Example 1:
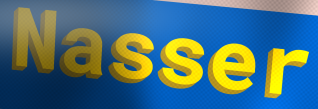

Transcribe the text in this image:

Nasser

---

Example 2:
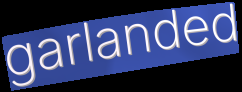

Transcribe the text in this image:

garlanded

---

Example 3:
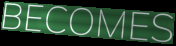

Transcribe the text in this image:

BECOMES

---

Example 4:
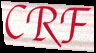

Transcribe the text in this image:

CRF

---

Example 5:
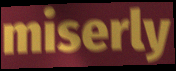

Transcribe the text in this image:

miserly